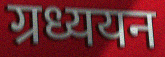
ग्रध्ययन